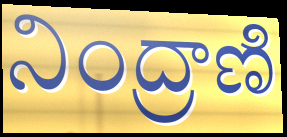
నింద్రాణి